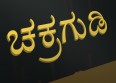
ಚಕ್ರಗುಡಿ